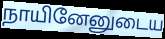
நாயினேனுடைய